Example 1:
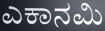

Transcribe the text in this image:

ಎಕಾನಮಿ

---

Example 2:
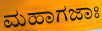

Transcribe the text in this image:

ಮಹಾಗಜಾಃ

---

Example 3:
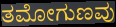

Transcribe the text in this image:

ತಮೋಗುಣವು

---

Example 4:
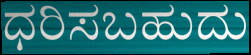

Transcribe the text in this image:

ಧರಿಸಬಹುದು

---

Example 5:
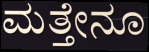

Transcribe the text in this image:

ಮತ್ತೇನೂ